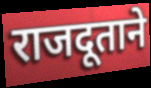
राजदूताने